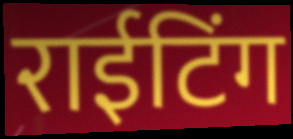
राईटिंग